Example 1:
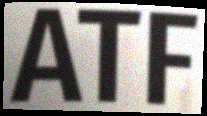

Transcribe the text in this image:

ATF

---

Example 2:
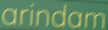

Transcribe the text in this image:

arindam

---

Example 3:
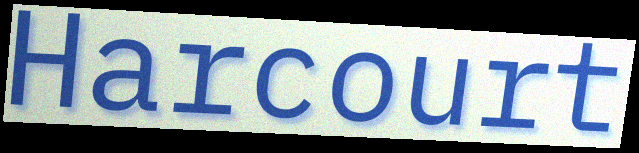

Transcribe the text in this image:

Harcourt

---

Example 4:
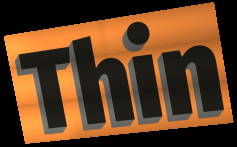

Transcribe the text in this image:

Thin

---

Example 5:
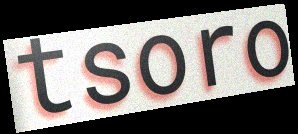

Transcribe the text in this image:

tsoro